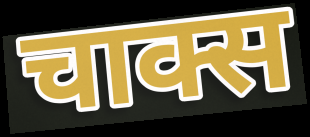
चाक्स